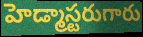
హెడ్మాస్టరుగారు